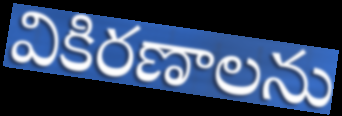
వికిరణాలను